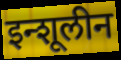
इन्शूलीन